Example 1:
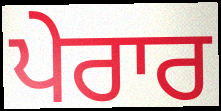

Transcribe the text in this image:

ਪੇਰਾਰ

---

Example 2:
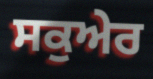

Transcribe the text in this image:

ਸਕੁਅੇਰ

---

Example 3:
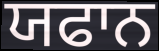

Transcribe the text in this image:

ਯਫਾਨ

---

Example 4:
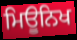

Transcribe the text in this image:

ਮਿਊਨਿਖ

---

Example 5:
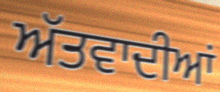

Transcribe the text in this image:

ਅੱਤਵਾਦੀਆਂ